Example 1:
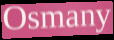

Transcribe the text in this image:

Osmany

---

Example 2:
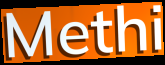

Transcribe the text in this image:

Methi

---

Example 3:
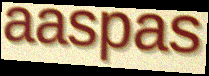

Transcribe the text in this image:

aaspas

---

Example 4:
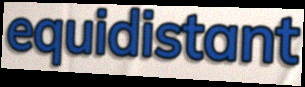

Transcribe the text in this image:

equidistant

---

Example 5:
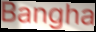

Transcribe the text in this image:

Bangha